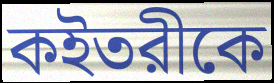
কইতরীকে